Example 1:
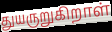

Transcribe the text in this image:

துயருறுகிறாள்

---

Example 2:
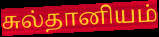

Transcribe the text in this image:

சுல்தானியம்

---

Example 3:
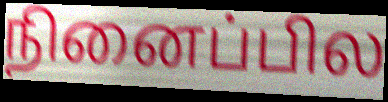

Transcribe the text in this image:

நினைப்பில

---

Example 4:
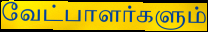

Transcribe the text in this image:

வேட்பாளர்களும்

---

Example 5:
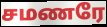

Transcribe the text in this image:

சமணரே